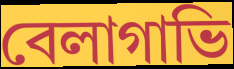
বেলাগাভি